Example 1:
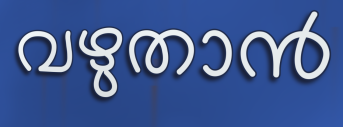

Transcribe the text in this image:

വഴുതാൻ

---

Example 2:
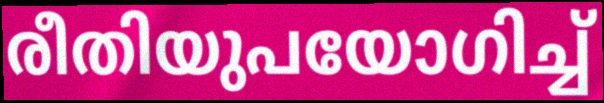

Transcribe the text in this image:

രീതിയുപയോഗിച്ച്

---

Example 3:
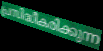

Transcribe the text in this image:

പ്രസിദ്ധീകരിക്കുന്ന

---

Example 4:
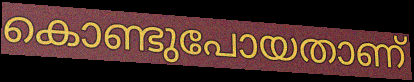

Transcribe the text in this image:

കൊണ്ടുപോയതാണ്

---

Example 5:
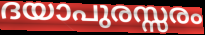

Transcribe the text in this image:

ദയാപുരസ്സരം